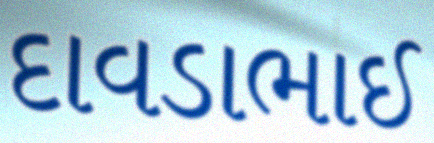
દાવડાભાઈ